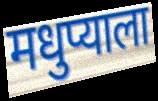
मधुप्याला